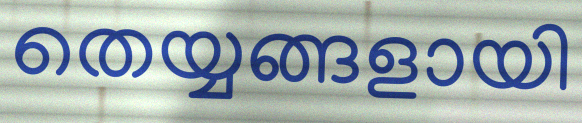
തെയ്യങ്ങളായി